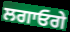
ਲਗਾਓਗੇ